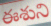
ఈశుని